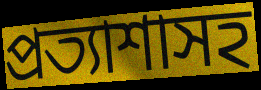
প্রত্যাশাসহ